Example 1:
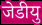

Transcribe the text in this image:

जेडीयु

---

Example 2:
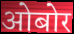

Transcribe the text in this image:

ओबोर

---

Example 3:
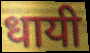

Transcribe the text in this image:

धायी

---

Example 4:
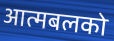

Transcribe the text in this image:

आत्मबलको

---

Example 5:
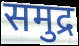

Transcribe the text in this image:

समुद्र